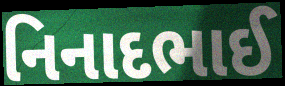
નિનાદભાઈ